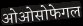
ओओसोफेगल